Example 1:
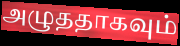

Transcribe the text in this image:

அழுததாகவும்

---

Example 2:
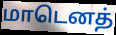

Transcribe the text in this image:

மாடெனத்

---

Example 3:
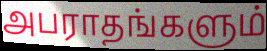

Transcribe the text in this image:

அபராதங்களும்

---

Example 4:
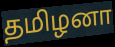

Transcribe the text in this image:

தமிழனா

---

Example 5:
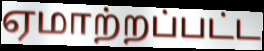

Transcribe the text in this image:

ஏமாற்றப்பட்ட